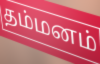
தம்மனம்